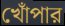
খোঁপার